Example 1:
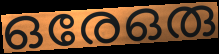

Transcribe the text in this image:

ഒരേഒരു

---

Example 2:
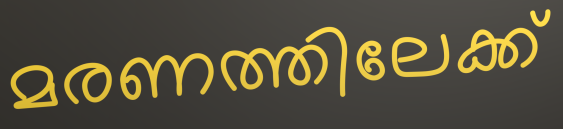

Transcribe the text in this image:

മരണത്തിലേക്ക്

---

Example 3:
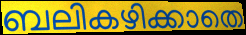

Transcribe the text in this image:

ബലികഴിക്കാതെ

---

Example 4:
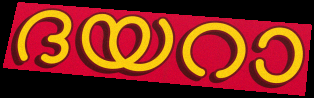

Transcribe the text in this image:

ദയറാ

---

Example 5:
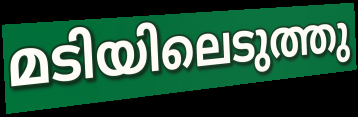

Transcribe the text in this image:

മടിയിലെടുത്തു